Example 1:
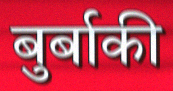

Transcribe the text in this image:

बुर्बाकी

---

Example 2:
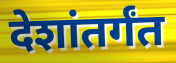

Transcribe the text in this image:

देशांतर्गंत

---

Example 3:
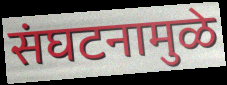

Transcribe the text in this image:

संघटनामुळे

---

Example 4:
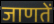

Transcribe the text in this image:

जाणतें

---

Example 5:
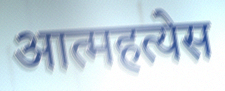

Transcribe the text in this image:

आत्महत्येस